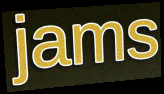
jams